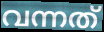
വന്നത്